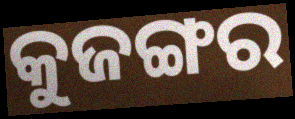
କୁଜଙ୍ଗର